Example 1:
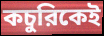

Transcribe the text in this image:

কচুরিকেই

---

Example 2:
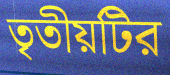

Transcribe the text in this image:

তৃতীয়টির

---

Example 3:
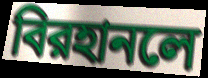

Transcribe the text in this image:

বিরহানলে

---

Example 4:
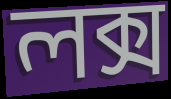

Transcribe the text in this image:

লক্স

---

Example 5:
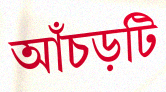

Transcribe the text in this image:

আঁচড়টি